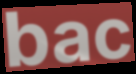
bac